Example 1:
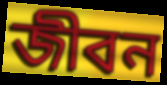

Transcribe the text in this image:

জীবন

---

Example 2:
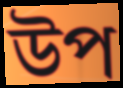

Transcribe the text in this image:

উপ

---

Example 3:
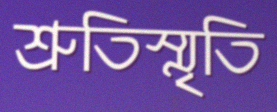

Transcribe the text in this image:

শ্রুতিস্মৃতি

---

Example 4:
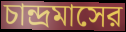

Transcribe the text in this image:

চান্দ্রমাসের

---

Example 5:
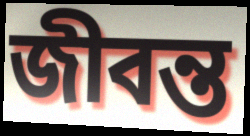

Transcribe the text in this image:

জীবন্ত